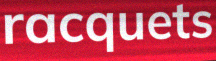
racquets